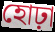
হোঢ়া